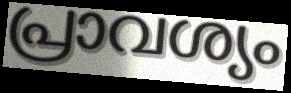
പ്രാവശ്യം